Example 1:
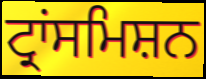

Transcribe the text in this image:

ਟ੍ਰਾਂਸਮਿਸ਼ਨ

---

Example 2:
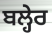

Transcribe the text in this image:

ਬਲ੍ਹੇਰ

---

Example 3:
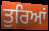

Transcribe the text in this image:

ਤੁਰਿਆਂ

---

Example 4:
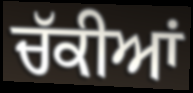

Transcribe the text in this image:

ਚੱਕੀਆਂ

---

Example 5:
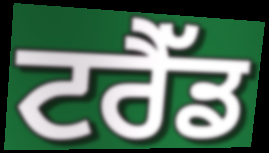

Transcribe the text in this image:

ਟਰੈੱਡ